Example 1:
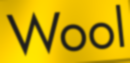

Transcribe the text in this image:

Wool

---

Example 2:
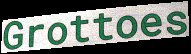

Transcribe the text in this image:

Grottoes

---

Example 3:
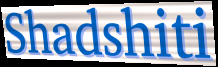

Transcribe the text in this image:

Shadshiti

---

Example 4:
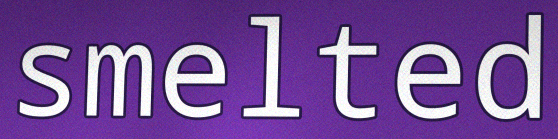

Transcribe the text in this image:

smelted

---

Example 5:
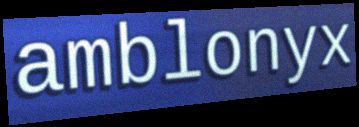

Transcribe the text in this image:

amblonyx